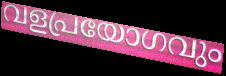
വളപ്രയോഗവും